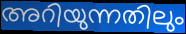
അറിയുന്നതിലും